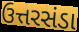
ઉત્તરસંડા